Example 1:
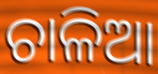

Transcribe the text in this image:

ଚାଳିଆ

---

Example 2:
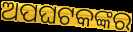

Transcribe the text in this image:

ଅପଘଟକଙ୍କର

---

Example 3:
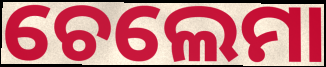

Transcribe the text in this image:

ଚେଲେମା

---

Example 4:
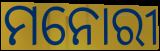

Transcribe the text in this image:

ମନୋରୀ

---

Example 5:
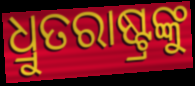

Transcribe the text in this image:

ଧ୍ରୁତରାଷ୍ଟ୍ରଙ୍କୁ